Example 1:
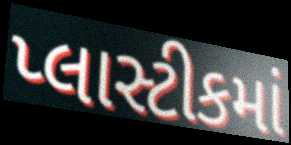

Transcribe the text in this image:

પ્લાસ્ટીકમાં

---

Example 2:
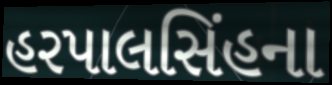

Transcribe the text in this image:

હરપાલસિંહના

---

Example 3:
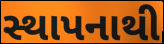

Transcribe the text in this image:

સ્થાપનાથી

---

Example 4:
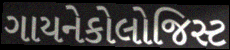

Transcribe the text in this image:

ગાયનેકોલોજિસ્ટ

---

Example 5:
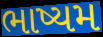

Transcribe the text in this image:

ભાષ્યમ